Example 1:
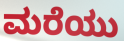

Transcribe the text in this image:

ಮರೆಯು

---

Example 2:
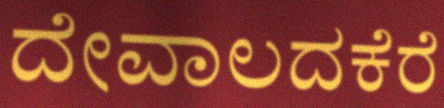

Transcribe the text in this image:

ದೇವಾಲದಕೆರೆ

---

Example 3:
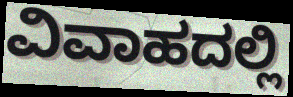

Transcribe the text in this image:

ವಿವಾಹದಲ್ಲಿ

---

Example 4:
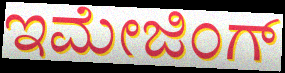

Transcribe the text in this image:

ಇಮೇಜಿಂಗ್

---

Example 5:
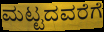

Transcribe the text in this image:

ಮಟ್ಟದವರೆಗೆ